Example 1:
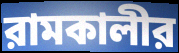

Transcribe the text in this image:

রামকালীর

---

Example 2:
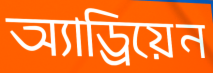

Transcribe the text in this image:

অ্যাড্রিয়েন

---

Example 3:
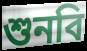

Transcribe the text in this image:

শুনবি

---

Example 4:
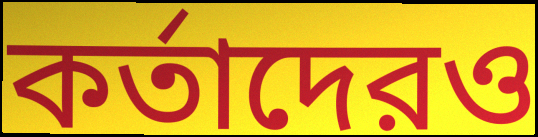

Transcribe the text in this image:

কর্তাদেরও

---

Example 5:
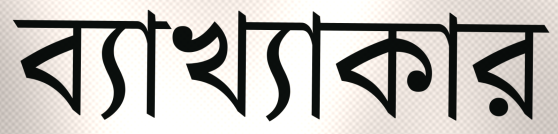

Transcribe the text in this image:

ব্যাখ্যাকার